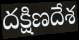
దక్షిణదేశ